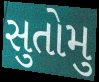
સુતોમુ